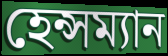
হেন্সম্যান